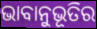
ଭାବାନୁଭୂତିର